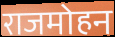
राजमोहन